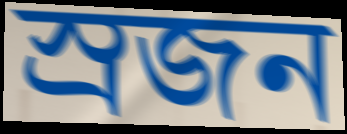
স্ৰজন